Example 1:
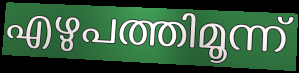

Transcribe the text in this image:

എഴുപത്തിമൂന്ന്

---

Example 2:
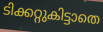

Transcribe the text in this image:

ടിക്കറ്റുകിട്ടാതെ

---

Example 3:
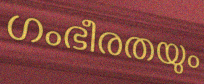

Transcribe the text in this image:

ഗംഭീരതയും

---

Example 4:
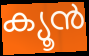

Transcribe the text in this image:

ക്യൂൻ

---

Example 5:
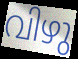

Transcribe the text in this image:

വിഴു